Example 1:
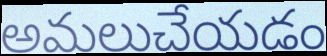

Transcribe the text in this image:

అమలుచేయడం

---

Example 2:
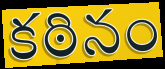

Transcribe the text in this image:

కఠినం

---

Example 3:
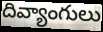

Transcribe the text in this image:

దివ్యాంగులు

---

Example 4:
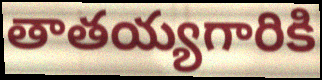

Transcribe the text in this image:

తాతయ్యగారికి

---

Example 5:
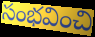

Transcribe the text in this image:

సంభవించి